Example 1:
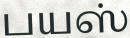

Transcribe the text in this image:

பயஸ்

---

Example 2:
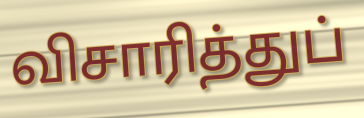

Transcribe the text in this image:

விசாரித்துப்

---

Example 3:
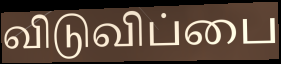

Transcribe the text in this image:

விடுவிப்பை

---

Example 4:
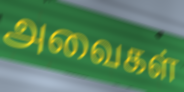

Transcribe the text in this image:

அவைகள்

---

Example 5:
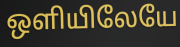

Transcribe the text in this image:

ஒளியிலேயே